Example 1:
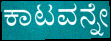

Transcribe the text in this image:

ಕಾಟವನ್ನೇ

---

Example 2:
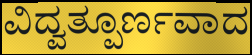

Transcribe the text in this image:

ವಿದ್ವತ್ಪೂರ್ಣವಾದ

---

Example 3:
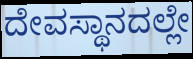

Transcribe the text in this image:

ದೇವಸ್ಥಾನದಲ್ಲೇ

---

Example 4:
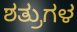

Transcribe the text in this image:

ಶತ್ರುಗಳ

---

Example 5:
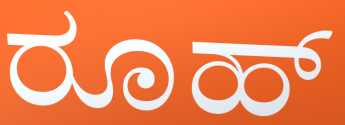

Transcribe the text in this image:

ರೂಹ್